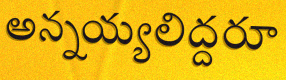
అన్నయ్యలిద్దరూ